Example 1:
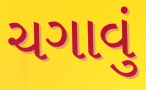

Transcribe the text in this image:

ચગાવું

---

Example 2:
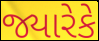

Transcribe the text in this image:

જ્યારેકે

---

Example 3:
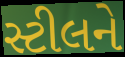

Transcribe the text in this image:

સ્ટીલને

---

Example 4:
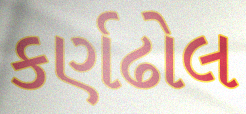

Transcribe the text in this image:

કર્ણઢોલ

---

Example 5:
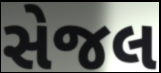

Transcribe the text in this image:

સેજલ